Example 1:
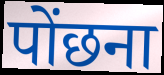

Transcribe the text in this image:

पोंछना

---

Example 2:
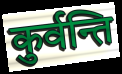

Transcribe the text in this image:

कुर्वन्ति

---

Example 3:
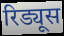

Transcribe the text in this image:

रिड्यूस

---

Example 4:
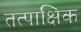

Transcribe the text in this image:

तत्पाक्षिक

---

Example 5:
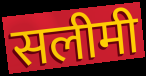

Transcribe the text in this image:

सलीमी